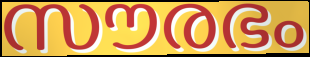
സൗരഭം